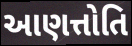
આણત્તોતિ